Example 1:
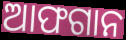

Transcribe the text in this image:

ଆଫଗାନ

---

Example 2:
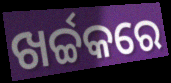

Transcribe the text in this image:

ଖର୍ଚ୍ଚକରେ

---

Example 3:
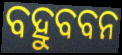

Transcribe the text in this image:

ବହୁବବନ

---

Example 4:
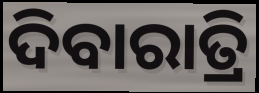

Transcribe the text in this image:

ଦିବାରାତ୍ରି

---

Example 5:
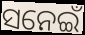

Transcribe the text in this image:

ସନେଇଁ